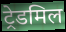
ट्रेडमिल